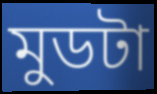
মুডটা